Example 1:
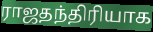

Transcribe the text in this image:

ராஜதந்திரியாக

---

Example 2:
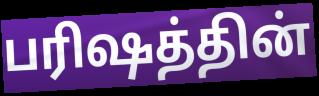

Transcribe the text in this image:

பரிஷத்தின்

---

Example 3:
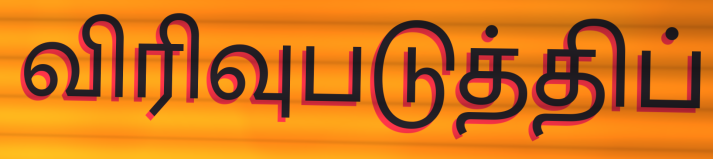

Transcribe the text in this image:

விரிவுபடுத்திப்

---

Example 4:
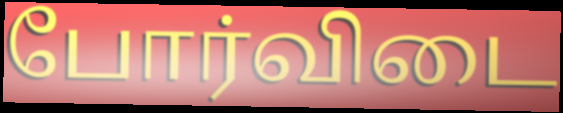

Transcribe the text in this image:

போர்விடை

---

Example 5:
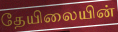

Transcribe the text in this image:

தேயிலையின்